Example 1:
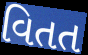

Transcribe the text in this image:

વિતત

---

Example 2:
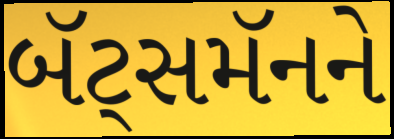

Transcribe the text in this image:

બૅટ્સમૅનને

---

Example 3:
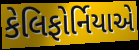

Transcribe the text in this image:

કેલિફોર્નિયાએ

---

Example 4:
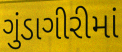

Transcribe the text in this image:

ગુંડાગીરીમાં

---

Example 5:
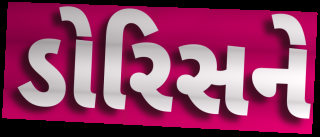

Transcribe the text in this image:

ડોરિસને